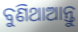
ବୁଣିଥାଆନ୍ତୁ